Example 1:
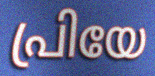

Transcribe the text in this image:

പ്രിയേ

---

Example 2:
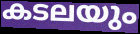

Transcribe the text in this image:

കടലയും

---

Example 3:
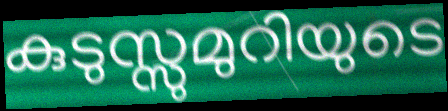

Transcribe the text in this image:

കുടുസ്സുമുറിയുടെ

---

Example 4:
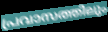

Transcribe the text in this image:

പ്രവാസത്തിലും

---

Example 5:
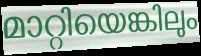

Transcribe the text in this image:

മാറ്റിയെങ്കിലും